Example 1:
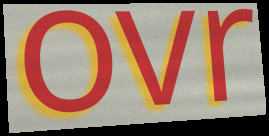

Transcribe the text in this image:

ovr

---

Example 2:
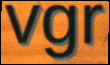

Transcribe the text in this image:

vgr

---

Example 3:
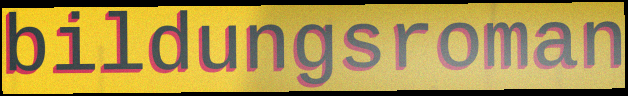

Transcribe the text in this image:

bildungsroman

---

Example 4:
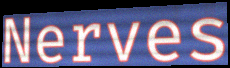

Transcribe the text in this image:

Nerves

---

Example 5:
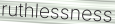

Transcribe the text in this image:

ruthlessness